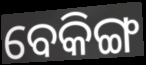
ବେକିଙ୍ଗ